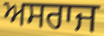
ਅਸਰਾਜ